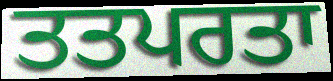
ਤਤਪਰਤਾ